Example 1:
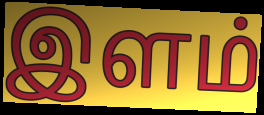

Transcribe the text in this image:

இளம்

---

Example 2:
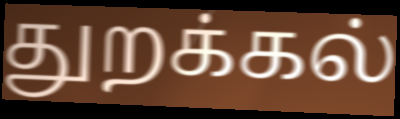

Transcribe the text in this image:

துறக்கல்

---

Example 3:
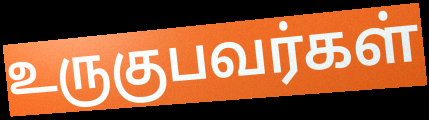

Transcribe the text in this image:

உருகுபவர்கள்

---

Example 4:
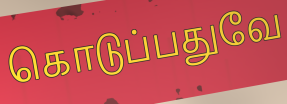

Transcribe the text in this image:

கொடுப்பதுவே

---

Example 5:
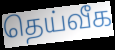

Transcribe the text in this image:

தெய்வீக